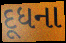
દૂધના